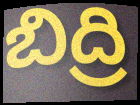
బిద్రి